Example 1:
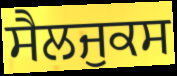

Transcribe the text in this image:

ਸੈਲਜੁਕਸ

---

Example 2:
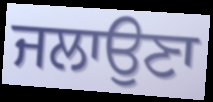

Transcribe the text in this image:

ਜਲਾਉਣਾ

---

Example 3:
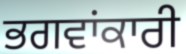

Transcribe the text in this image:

ਭਗਵਾਂਕਾਰੀ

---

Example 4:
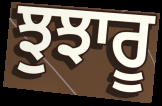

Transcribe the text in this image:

ਝੁਝਾਰੂ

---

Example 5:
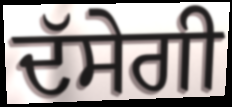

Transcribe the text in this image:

ਦੱਸੇਗੀ